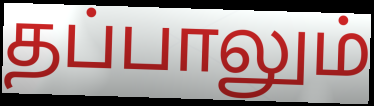
தப்பாலும்